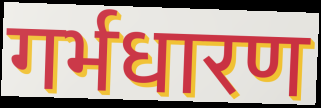
गर्भधारण